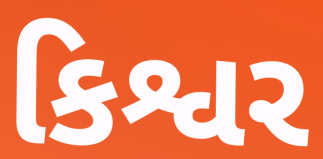
કિશ્વર